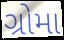
ગ્રોમા